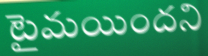
టైమయిందని